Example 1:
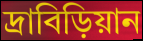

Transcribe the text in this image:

দ্রাবিড়িয়ান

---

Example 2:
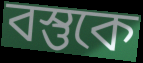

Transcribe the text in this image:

বস্তুকে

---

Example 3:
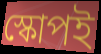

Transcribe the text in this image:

স্কোপই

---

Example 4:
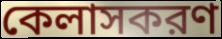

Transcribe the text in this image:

কেলাসকরণ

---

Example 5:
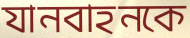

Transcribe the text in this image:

যানবাহনকে